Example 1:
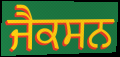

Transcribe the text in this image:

ਜੈਕਸਨ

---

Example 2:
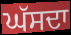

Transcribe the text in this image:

ਘੱਸਦਾ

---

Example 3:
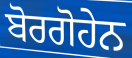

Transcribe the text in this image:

ਬੋਰਗੋਹੇਨ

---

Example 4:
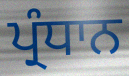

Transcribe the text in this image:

ਪ੍ਰੰਧਾਨ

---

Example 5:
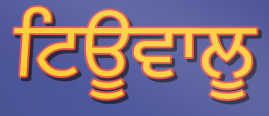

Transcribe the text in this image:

ਟਿਊਵਾਲੂ